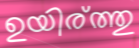
ഉയിര്ത്തു